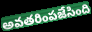
అవతరింపజేసింది